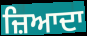
ਜ਼ਿਆਦਾ